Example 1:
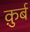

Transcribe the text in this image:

क़ुर्ब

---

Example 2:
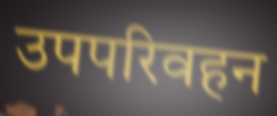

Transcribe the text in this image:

उपपरिवहन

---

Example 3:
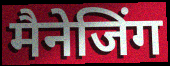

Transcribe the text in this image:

मैनेजिंग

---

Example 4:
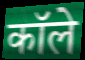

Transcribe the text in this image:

कॉले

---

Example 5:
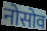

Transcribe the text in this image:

नोसोव